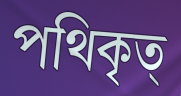
পথিকৃত্